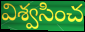
విశ్వసించ